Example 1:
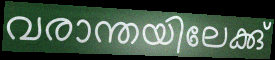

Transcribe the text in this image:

വരാന്തയിലേക്കു്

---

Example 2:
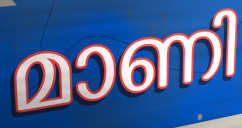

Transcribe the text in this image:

മാണി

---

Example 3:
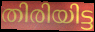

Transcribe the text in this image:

തിരിയിട്ട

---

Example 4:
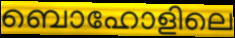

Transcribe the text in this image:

ബൊഹോളിലെ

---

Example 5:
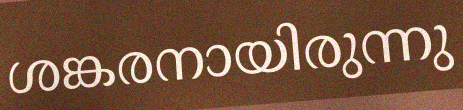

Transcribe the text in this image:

ശങ്കരനായിരുന്നു